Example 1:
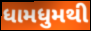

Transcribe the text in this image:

ધામધુમથી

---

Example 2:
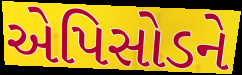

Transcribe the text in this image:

એપિસોડને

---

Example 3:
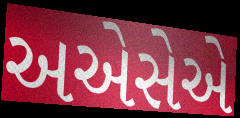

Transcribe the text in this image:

અએસેએ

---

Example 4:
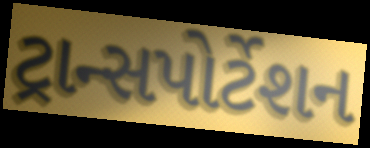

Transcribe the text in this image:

ટ્રાન્સપોર્ટેશન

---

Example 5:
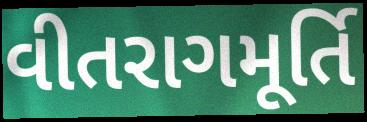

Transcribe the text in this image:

વીતરાગમૂર્તિ